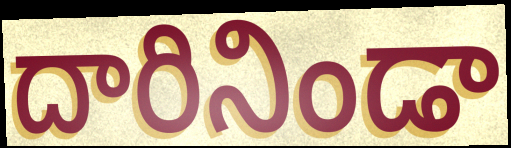
దారినిండా